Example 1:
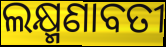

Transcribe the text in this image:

ଲକ୍ଷ୍ମଣାବତୀ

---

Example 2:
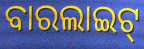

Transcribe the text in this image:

ବାରଲାଇଟ୍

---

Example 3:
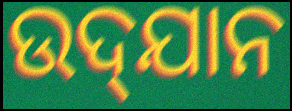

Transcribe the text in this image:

ଉଦ୍‌ଯାନ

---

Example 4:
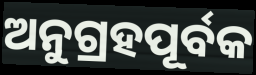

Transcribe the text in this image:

ଅନୁଗ୍ରହପୂର୍ବକ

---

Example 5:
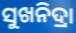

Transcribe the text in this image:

ସୁଖନିଦ୍ରା